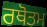
ਰਥੋਤਮ